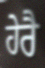
ਹੇਰੈ